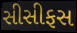
સીસીફસ